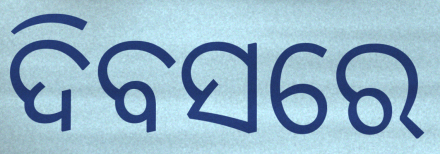
ଦିବସରେ